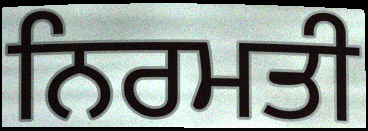
ਨਿਰਮਤੀ